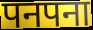
पनपना